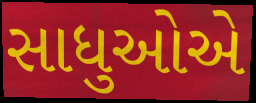
સાધુઓએ